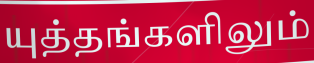
யுத்தங்களிலும்